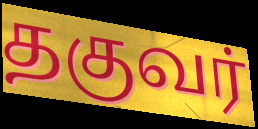
தகுவர்